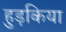
हुड़किया